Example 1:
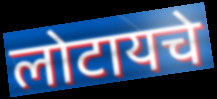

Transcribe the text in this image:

लोटायचे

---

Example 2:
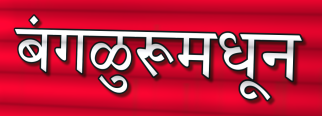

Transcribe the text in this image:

बंगळुरूमधून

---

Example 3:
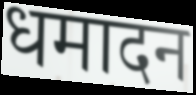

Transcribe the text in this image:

धमादन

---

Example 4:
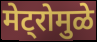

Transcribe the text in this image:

मेट्रोमुळे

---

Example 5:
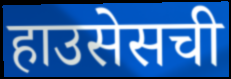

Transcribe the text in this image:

हाउसेसची